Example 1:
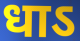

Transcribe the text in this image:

धाऽ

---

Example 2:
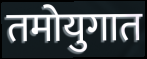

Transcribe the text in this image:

तमोयुगात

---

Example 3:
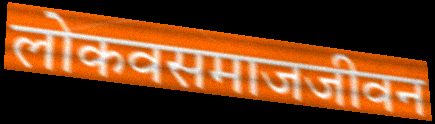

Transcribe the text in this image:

लोकवसमाजजीवन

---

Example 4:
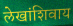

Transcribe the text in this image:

लेखांशिवाय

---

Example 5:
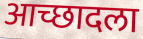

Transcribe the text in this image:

आच्छादला